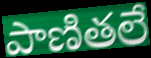
పాణితలే